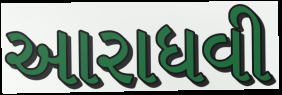
આરાધવી